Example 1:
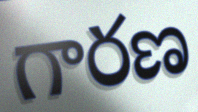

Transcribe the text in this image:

గారణ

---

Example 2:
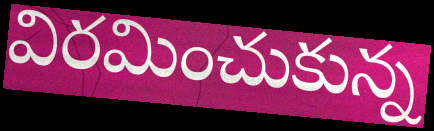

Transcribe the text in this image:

విరమించుకున్న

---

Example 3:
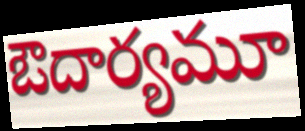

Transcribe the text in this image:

ఔదార్యమూ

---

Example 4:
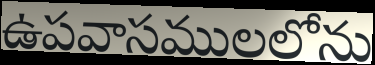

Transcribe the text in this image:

ఉపవాసములలోను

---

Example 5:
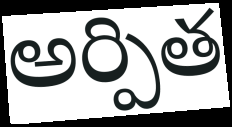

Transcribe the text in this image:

అర్పిత